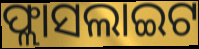
ଫ୍ଲାସଲାଇଟ